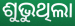
ଶୁଭୁଥିଲା